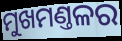
ମୁଖମଣ୍ତଳର